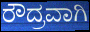
ರೌದ್ರವಾಗಿ